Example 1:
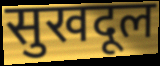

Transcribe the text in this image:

सुखदूल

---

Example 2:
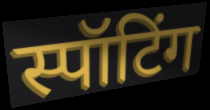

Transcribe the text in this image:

स्पॉटिंग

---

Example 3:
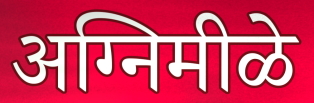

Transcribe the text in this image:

अग्निमीळे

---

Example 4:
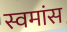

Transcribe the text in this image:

स्वमांस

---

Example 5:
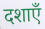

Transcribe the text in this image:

दशाएँ